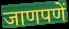
जाणपणें